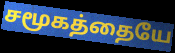
சமூகத்தையே